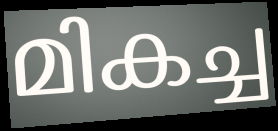
മികച്ച